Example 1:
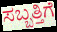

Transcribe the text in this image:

ಸಬ್ಬತ್ತಿಗೆ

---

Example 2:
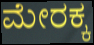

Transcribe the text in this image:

ಮೇರಕ್ಕ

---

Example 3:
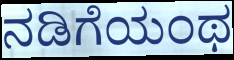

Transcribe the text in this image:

ನಡಿಗೆಯಂಥ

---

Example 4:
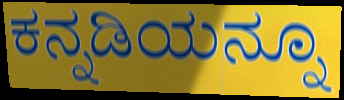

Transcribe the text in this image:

ಕನ್ನಡಿಯನ್ನೂ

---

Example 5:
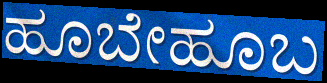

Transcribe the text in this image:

ಹೂಬೇಹೂಬ